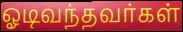
ஓடிவந்தவர்கள்